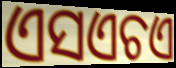
ଏସଏଚଏ